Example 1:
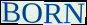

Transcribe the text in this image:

BORN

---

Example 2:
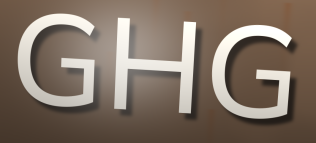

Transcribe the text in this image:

GHG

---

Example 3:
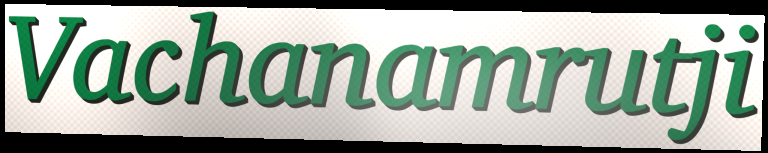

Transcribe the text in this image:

Vachanamrutji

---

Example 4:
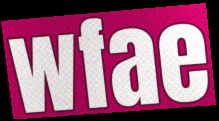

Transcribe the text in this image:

wfae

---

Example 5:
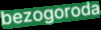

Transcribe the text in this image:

bezogoroda